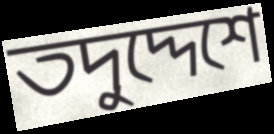
তদুদ্দেশে